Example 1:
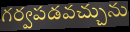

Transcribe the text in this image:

గర్వపడవచ్చును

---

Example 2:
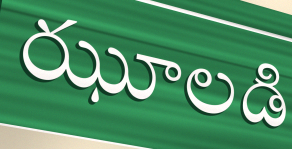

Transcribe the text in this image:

ఝూలడి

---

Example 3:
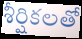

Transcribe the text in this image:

శీర్షికలతో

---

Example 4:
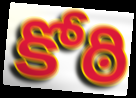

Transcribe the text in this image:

కోఠి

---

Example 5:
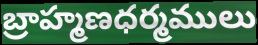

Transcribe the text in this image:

బ్రాహ్మణధర్మములు